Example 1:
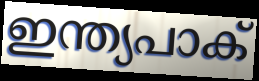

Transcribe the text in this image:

ഇന്ത്യപാക്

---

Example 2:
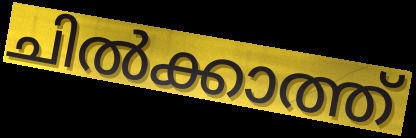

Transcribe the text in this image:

ചിൽക്കാത്ത്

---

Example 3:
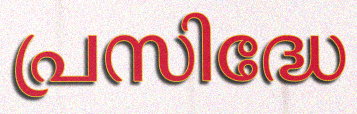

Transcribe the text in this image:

പ്രസിദ്ധേ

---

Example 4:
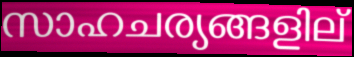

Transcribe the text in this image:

സാഹചര്യങ്ങളില്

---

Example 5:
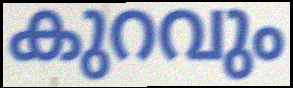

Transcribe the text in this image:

കുറവും